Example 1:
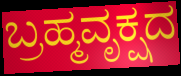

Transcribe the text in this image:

ಬ್ರಹ್ಮವೃಕ್ಷದ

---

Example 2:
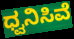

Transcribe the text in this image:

ಧ್ವನಿಸಿವೆ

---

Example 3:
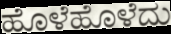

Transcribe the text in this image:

ಹೊಳೆಹೊಳೆದು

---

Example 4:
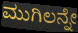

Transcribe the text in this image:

ಮುಗಿಲನ್ನೇ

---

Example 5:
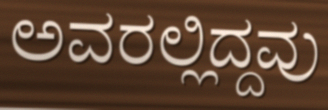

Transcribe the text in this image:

ಅವರಲ್ಲಿದ್ದವು